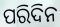
ପରିଦିନ